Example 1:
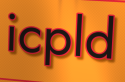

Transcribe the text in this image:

icpld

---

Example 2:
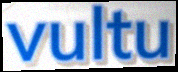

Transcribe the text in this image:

vultu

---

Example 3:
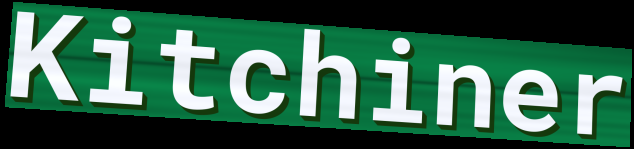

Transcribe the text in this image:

Kitchiner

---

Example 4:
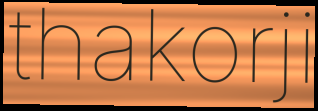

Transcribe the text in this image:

thakorji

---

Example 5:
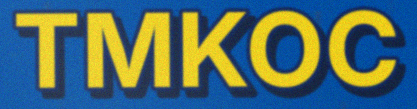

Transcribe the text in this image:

TMKOC